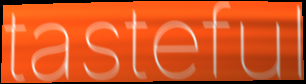
tasteful